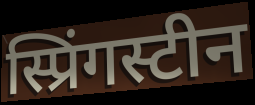
स्प्रिंगस्टीन